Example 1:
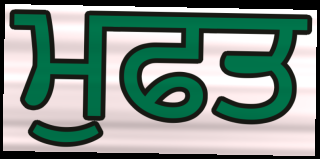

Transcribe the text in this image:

ਮੁਫਤ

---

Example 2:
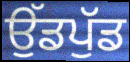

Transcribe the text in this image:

ਉੱਡਪੁੱਡ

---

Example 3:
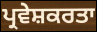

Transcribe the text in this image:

ਪ੍ਰਵੇਸ਼ਕਰਤਾ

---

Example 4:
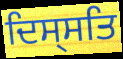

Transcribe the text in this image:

ਦਿਸ੍ਸਤਿ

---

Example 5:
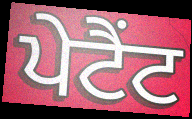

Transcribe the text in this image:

ਪੇਟੈਂਟ